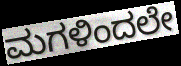
ಮಗಳಿಂದಲೇ